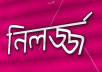
নিলর্জ্জ